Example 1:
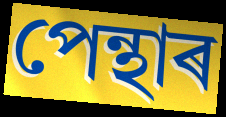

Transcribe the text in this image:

পেন্থাৰ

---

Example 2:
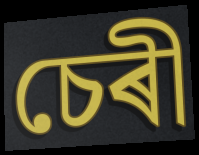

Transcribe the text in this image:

চেৰী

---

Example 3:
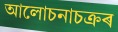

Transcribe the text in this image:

আলোচনাচক্ৰৰ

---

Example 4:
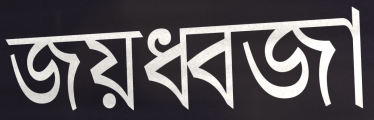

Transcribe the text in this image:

জয়ধ্বজা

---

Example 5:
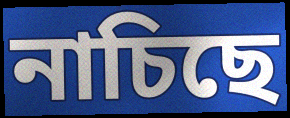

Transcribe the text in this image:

নাচিছে